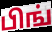
பிங்